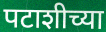
पटाशीच्या